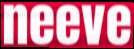
neeve